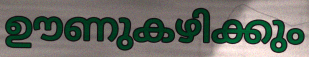
ഊണുകഴിക്കും